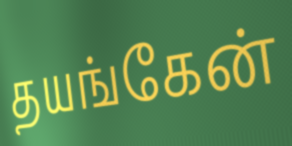
தயங்கேன்